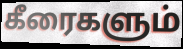
கீரைகளும்